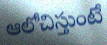
ఆలోచిస్తుంటే